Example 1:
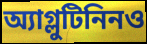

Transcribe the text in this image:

অ্যাগ্লুটিনিনও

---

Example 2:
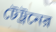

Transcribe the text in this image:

টেট্রনের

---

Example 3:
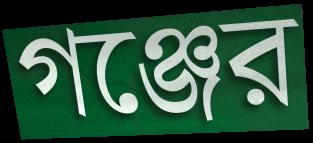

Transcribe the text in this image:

গঞ্জের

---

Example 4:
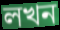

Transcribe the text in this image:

লখন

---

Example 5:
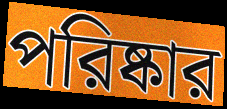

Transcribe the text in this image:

পরিষ্কার